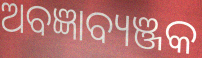
ଅବଜ୍ଞାବ୍ୟଞ୍ଜକ